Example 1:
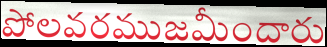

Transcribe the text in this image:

పోలవరముజమీందారు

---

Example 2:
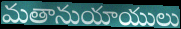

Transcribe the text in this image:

మతానుయాయులు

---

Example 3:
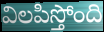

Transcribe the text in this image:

విలపిస్తోంది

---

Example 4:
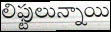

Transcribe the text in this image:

లిఫ్టులున్నాయి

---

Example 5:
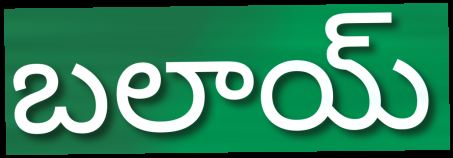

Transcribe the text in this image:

బలాయ్